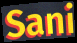
Sani